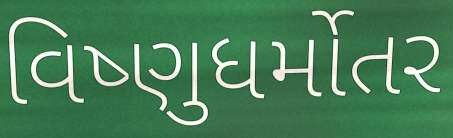
વિષ્ણુધર્મોતર